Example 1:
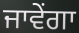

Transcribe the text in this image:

ਜਾਵੇਂਗਾ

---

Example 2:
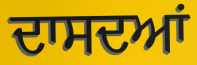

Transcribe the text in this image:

ਦਾਸਦਆਂ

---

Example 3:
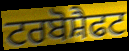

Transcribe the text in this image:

ਟਰਬੋਸ਼ੈਫਟ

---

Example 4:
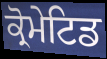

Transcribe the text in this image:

ਕ੍ਰੋਮੇਟਿਡ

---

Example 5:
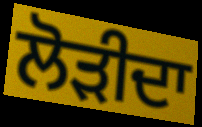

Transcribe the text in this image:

ਲੋੜੀਦਾ